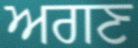
ਅਗਣ